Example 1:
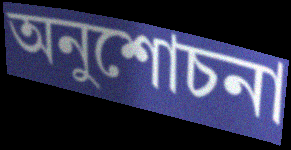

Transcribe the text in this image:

অনুশোচনা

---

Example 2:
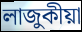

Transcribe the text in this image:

লাজুকীয়া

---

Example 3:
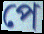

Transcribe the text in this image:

পে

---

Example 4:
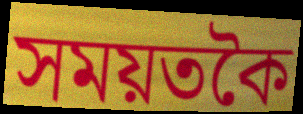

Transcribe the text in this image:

সময়তকৈ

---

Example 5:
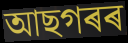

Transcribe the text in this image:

আছগৰৰ